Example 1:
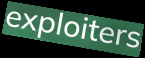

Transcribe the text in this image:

exploiters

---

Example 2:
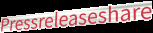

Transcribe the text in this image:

Pressreleaseshare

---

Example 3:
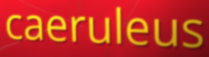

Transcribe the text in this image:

caeruleus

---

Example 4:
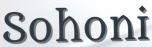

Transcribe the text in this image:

Sohoni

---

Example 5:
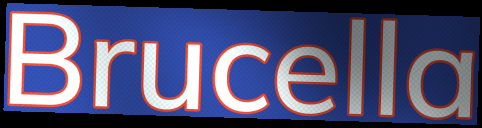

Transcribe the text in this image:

Brucella